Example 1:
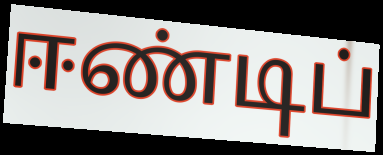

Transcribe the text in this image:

ஈண்டிப்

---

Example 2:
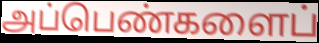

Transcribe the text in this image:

அப்பெண்களைப்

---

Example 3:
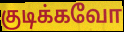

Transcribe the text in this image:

குடிக்கவோ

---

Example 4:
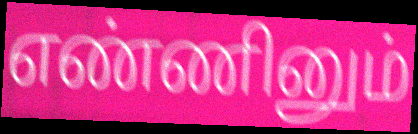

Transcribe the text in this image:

எண்ணினும்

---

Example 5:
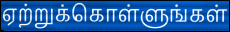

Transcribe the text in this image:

ஏற்றுக்கொள்ளுங்கள்